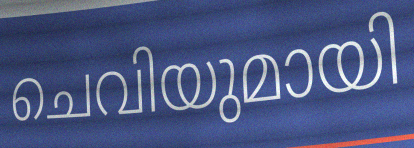
ചെവിയുമായി